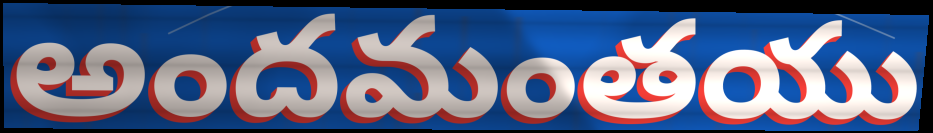
అందమంతయు